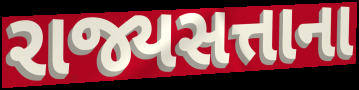
રાજ્યસત્તાના